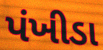
પંખીડા